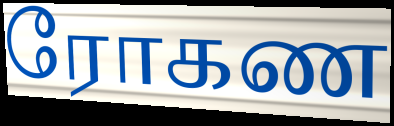
ரோகண